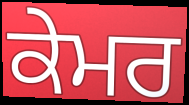
ਕੇਮਰ